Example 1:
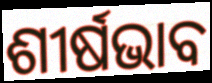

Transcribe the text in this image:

ଶୀର୍ଷଭାବ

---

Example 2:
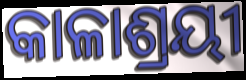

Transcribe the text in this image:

କାଳାଶ୍ରୟୀ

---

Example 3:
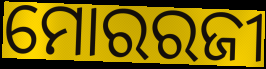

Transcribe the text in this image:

ମୋରରଜୀ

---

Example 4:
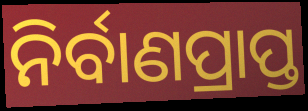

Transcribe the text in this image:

ନିର୍ବାଣପ୍ରାପ୍ତ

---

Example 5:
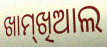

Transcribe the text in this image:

ଖାମ୍‌ଖିଆଲ